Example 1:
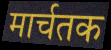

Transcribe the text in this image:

मार्चतक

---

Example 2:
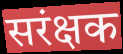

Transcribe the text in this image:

सरंक्षक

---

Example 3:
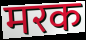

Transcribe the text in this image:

मरक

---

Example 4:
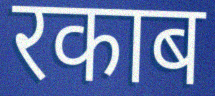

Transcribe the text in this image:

रकाब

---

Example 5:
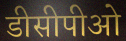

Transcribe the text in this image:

डीसीपीओ